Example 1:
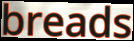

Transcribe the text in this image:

breads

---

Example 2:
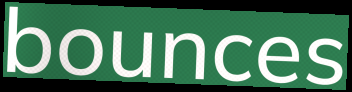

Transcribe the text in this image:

bounces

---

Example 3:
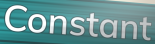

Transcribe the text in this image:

Constant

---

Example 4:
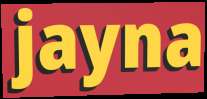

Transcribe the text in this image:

jayna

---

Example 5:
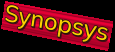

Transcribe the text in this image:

Synopsys